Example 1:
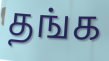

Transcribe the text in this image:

தங்க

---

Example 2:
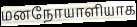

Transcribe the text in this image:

மனநோயாளியாக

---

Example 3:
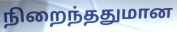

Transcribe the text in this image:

நிறைந்ததுமான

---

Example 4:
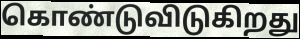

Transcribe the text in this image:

கொண்டுவிடுகிறது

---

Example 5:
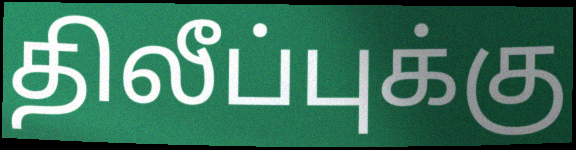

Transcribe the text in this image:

திலீப்புக்கு